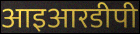
आइआरडीपी